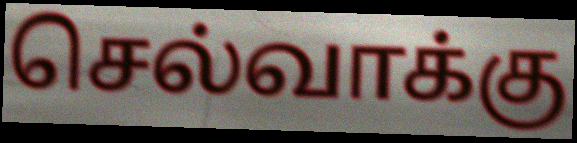
செல்வாக்கு